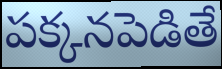
పక్కనపెడితే